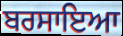
ਬਰਸਾਇਆ